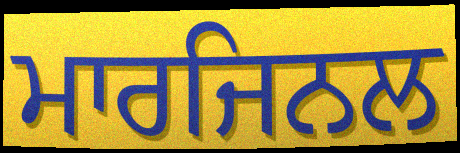
ਮਾਰਜਿਨਲ